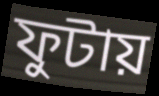
ফুটায়